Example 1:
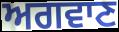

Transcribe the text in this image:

ਅਗਵਾਣ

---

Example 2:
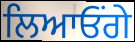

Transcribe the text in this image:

ਲਿਆਓਂਗੇ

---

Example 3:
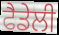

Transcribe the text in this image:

ਫੈਡੇਲੀ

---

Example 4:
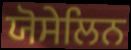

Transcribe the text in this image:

ਯੋਸੇਲਿਨ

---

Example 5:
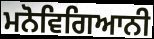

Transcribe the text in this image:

ਮਨੋਵਿਗਿਆਨੀ